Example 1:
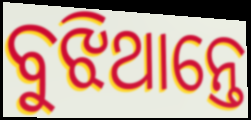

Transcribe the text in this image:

ବୁଝିଥାନ୍ତେ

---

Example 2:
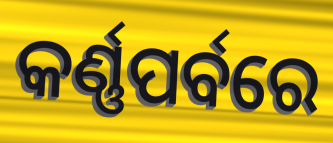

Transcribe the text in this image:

କର୍ଣ୍ଣପର୍ବରେ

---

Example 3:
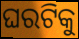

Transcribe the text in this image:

ଘରଟିକୁ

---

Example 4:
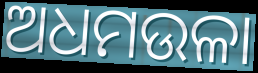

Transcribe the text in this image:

ଅଧମଉଳା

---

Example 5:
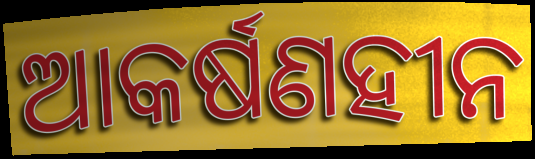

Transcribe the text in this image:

ଆକର୍ଷଣହୀନ